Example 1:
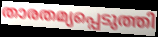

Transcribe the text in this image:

താരതമ്യപ്പെടുത്തി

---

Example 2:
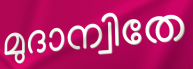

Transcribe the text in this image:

മുദാന്വിതേ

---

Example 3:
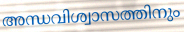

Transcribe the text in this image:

അന്ധവിശ്വാസത്തിനും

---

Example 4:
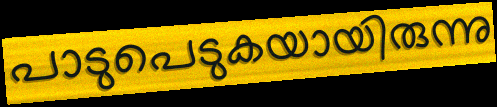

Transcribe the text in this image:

പാടുപെടുകയായിരുന്നു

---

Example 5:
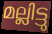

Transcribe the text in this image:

മല്ലിട്ടു